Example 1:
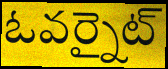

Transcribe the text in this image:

ఓవర్నైట్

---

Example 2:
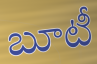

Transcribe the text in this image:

బూటీ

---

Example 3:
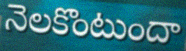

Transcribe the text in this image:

నెలకొంటుందా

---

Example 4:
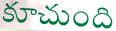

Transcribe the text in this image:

కూచుంది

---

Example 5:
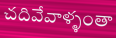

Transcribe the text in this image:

చదివేవాళ్ళంతా